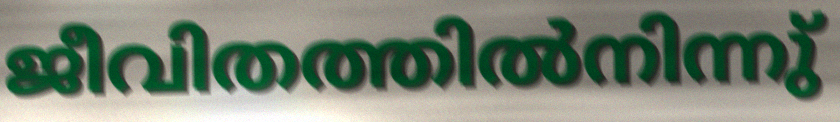
ജീവിതത്തിൽനിന്നു്